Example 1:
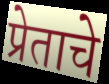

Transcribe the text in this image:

प्रेताचे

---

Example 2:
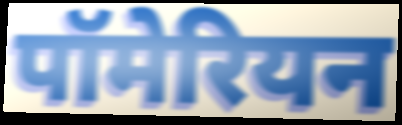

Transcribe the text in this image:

पॉमेरियन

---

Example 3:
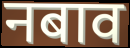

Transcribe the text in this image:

नबाव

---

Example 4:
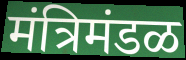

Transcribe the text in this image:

मंत्रिमंडळ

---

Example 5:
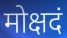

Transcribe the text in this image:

मोक्षदं